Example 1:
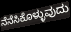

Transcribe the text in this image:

ನೆನೆಸಿಕೊಳ್ಳುವುದು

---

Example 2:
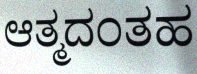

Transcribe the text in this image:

ಆತ್ಮದಂತಹ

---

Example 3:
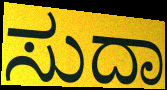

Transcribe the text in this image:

ಸುದಾ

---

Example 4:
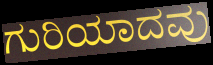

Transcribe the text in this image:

ಗುರಿಯಾದವು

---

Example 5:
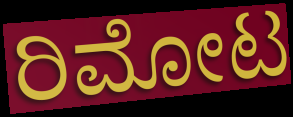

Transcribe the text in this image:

ರಿಮೋಟ